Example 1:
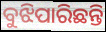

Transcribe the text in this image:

ବୁଝିପାରିଛନ୍ତି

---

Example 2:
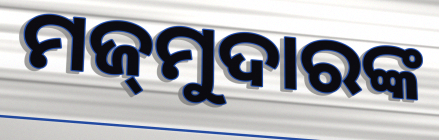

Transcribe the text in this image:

ମଜ୍‍ମୁଦାରଙ୍କ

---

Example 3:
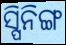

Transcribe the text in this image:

ସ୍ପିନିଙ୍ଗ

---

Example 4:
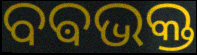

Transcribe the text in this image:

ବଵଭକ୍ତ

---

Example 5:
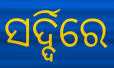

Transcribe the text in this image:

ସର୍ଦ୍ଦିରେ